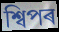
শ্বিপৰ